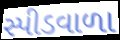
સ્પીડવાળા